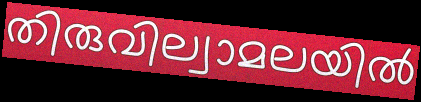
തിരുവില്വാമലയിൽ